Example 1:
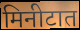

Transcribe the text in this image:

मिनीटात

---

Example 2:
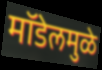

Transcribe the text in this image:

मॉडेलमुळे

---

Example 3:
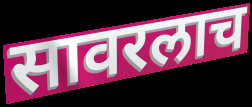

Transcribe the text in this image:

सावरलाच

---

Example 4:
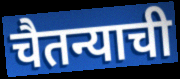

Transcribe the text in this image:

चैतन्याची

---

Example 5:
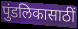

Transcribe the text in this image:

पुंडलिकासाठीं